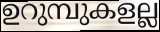
ഉറുമ്പുകളല്ല